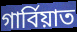
গার্বিয়াত